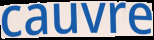
cauvre